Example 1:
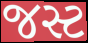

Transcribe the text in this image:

જસ્ટ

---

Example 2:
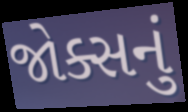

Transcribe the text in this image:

જોક્સનું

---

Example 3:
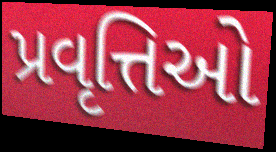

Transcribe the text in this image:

પ્રવૃત્તિઓ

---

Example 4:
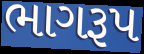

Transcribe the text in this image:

ભાગરૂપ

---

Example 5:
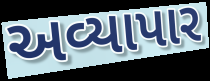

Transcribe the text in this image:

અવ્યાપાર